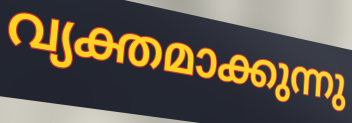
വ്യക്തമാക്കുന്നു